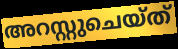
അറസ്റ്റുചെയ്ത്